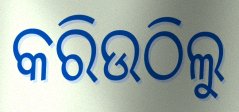
କରିଉଠିଲୁ